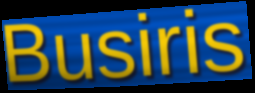
Busiris